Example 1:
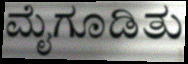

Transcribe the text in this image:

ಮೈಗೂಡಿತು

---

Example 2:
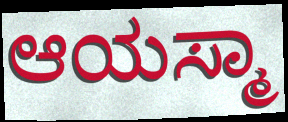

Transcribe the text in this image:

ಆಯಸ್ಮಾ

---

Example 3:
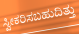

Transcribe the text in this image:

ಸ್ವೀಕರಿಸಬಹುದಿತ್ತು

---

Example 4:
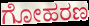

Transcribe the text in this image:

ಗೋಹರಣ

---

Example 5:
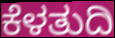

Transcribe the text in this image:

ಕೆಳತುದಿ